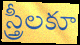
స్త్రీలకూ